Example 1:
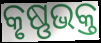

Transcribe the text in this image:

କୃଷ୍ଣଭକ୍ତ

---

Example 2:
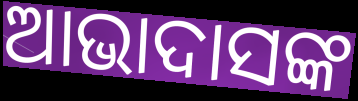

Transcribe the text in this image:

ଆଭାଦାସଙ୍କ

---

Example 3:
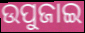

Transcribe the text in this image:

ଉପୁଜାଇ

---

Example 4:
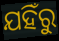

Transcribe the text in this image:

ଯହିଁରୁ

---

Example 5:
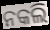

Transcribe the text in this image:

ନକଲି